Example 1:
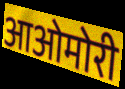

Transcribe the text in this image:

आओमोरी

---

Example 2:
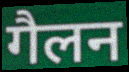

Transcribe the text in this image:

गैलन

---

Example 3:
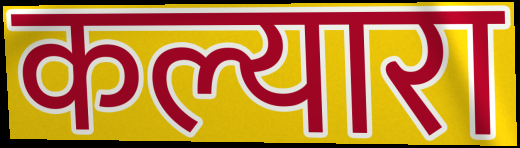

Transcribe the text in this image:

कल्यारा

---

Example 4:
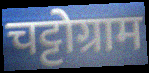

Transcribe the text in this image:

चट्टोग्राम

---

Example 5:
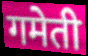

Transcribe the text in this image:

गमेती